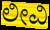
ಲೀವಿ